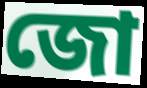
জো